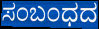
ಸಂಬಂಧದ